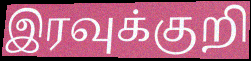
இரவுக்குறி